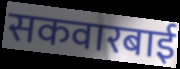
सकवारबाई